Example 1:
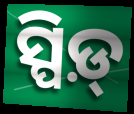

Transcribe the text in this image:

ସ୍ପିଡ଼୍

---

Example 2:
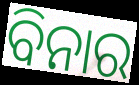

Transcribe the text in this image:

ବିନାର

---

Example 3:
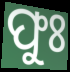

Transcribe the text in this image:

ଫୁଃ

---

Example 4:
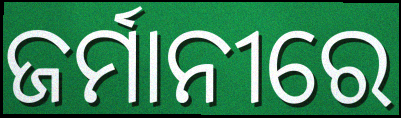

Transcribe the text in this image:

ଜର୍ମାନୀରେ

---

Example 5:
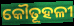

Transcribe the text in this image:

କୌତୂହଳୀ